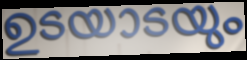
ഉടയാടയും